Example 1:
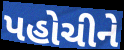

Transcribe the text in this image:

પહોચીને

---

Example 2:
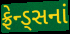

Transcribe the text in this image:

ફ્રેન્ડ્સનાં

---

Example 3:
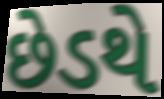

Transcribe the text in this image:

છેડથે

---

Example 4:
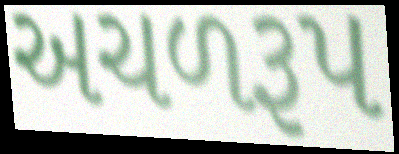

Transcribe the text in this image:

અચળરૂપ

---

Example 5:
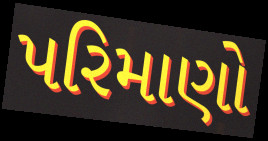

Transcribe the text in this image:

પરિમાણો